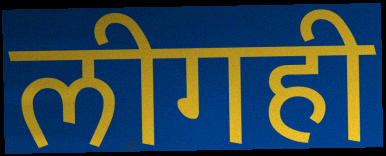
लीगही